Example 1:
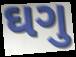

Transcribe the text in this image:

ઘગુ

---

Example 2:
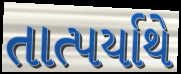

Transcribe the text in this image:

તાત્પર્યાથે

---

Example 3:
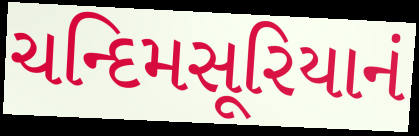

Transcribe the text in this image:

ચન્દિમસૂરિયાનં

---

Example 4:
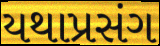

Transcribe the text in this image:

યથાપ્રસંગ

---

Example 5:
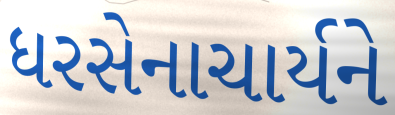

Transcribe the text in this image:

ધરસેનાચાર્યને